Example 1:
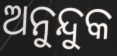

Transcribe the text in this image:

ଅନୁନ୍ଦୁକ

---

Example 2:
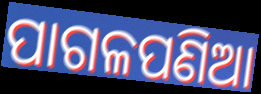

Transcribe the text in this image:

ପାଗଳପଣିଆ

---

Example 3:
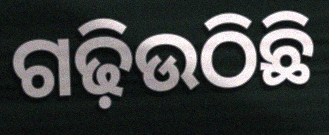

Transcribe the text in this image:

ଗଢ଼ିଉଠିଛି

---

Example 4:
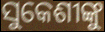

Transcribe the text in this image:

ସୁକେଶୀଙ୍କୁ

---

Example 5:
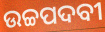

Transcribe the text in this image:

ଉଚ୍ଚପଦବୀ